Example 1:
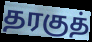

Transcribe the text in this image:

தரகுத்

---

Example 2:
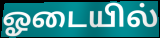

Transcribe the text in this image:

ஓடையில்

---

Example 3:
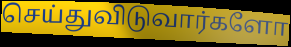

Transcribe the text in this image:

செய்துவிடுவார்களோ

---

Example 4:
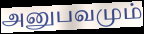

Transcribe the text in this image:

அனுபவமும்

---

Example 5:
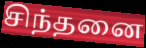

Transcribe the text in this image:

சிந்தனை